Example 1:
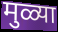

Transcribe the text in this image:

मुळ्या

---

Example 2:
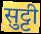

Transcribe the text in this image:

सुट्टी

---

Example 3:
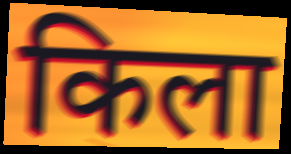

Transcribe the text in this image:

किला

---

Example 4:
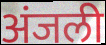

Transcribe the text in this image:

अंजली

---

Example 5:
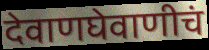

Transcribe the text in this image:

देवाणघेवाणीचं